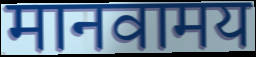
मानवामय